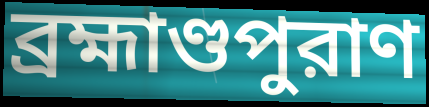
ব্রহ্মাণ্ডপুরাণ